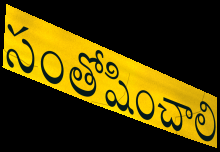
సంతోషించాలి